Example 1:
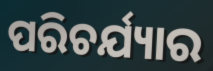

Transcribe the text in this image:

ପରିଚର୍ଯ୍ୟାର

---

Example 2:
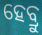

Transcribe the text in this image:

ହେବ୍ରୁ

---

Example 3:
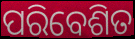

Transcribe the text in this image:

ପରିବେଶିତ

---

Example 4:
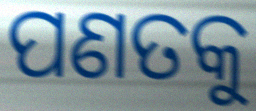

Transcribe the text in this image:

ପଣତକୁ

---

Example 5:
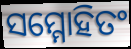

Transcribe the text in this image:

ସମ୍ମୋହିତଂ